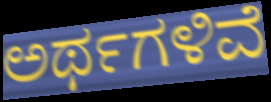
ಅರ್ಥಗಳಿವೆ